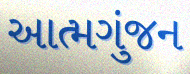
આત્મગુંજન